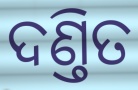
ଦଣ୍ତିତ